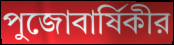
পুজোবার্ষিকীর